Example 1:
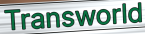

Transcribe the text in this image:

Transworld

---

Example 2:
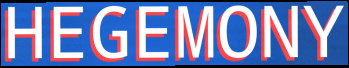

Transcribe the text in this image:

HEGEMONY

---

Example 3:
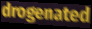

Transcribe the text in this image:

drogenated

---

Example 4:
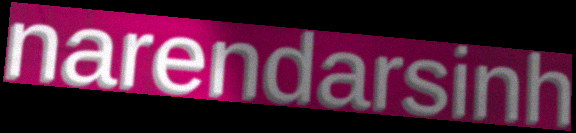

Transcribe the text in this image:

narendarsinh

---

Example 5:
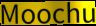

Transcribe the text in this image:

Moochu